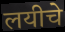
लयीचे